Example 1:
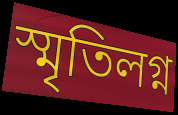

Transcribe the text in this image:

স্মৃতিলগ্ন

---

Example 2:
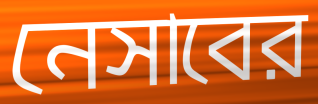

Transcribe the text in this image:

নেসাবের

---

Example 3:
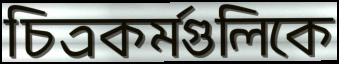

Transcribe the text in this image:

চিত্রকর্মগুলিকে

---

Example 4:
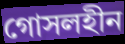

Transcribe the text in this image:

গোসলহীন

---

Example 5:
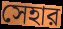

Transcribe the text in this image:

সেহার